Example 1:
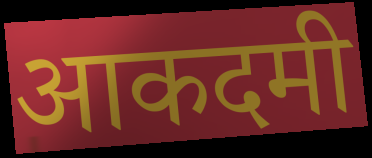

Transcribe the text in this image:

आकदमी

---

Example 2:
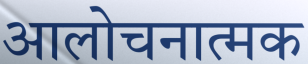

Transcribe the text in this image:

आलोचनात्मक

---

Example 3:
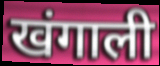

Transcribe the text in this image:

खंगाली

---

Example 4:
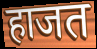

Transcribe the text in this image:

हाजत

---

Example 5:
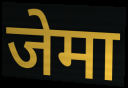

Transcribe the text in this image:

जेमा